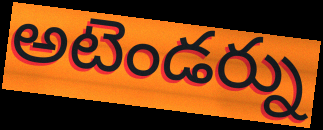
అటెండర్ను